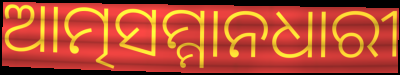
ଆତ୍ମସମ୍ମାନଧାରୀ